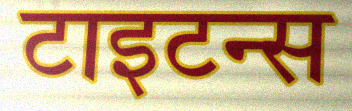
टाइटन्स